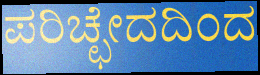
ಪರಿಚ್ಛೇದದಿಂದ